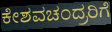
ಕೇಶವಚಂದ್ರರಿಗೆ